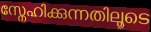
സ്നേഹിക്കുന്നതിലൂടെ